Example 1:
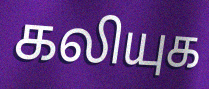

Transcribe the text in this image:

கலியுக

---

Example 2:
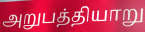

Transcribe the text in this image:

அறுபத்தியாறு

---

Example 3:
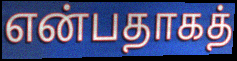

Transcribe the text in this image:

என்பதாகத்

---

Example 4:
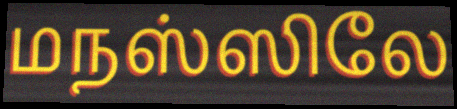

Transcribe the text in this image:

மநஸ்ஸிலே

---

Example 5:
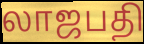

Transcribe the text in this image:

லாஜபதி